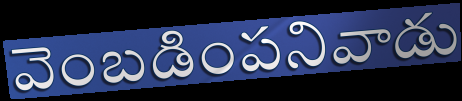
వెంబడింపనివాడు